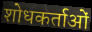
शोधकर्ताओं